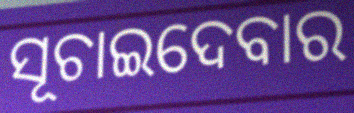
ସୂଚାଇଦେବାର